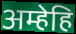
अम्हेहि